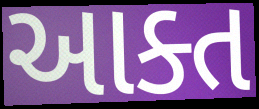
આક્ત